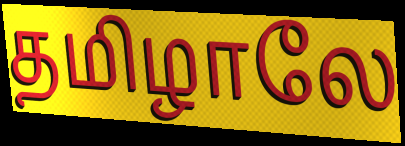
தமிழாலே